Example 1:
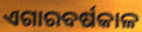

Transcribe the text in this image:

ଏଗାରବର୍ଷକାଳ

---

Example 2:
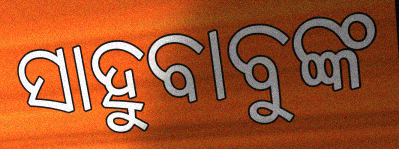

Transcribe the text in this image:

ସାହୁବାବୁଙ୍କ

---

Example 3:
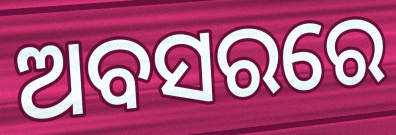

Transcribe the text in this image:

ଅବସରରେ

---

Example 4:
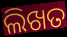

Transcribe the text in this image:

ଲିଖତ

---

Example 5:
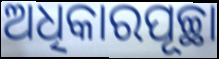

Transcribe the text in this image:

ଅଧିକାରପୂଚ୍ଛା